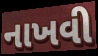
નાખવી